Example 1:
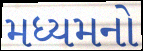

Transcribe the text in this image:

મધ્યમનો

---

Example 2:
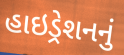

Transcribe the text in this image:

હાઇડ્રેશનનું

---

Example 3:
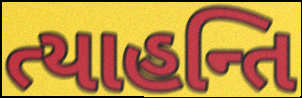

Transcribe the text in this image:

ત્યાહન્તિ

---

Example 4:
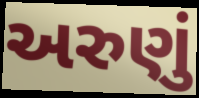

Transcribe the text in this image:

અરુણું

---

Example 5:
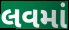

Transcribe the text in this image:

લવમાં